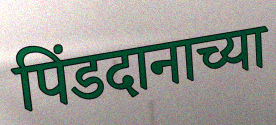
पिंडदानाच्या